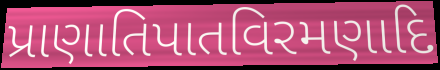
પ્રાણાતિપાતવિરમણાદિ